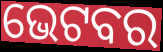
ଭେଟବର